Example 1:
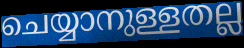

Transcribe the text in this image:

ചെയ്യാനുള്ളതല്ല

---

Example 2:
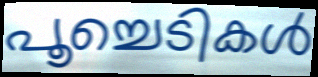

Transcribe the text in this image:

പൂച്ചെടികൾ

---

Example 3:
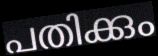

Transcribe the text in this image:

പതിക്കും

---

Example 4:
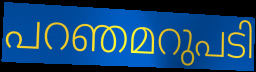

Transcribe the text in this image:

പറഞമറുപടി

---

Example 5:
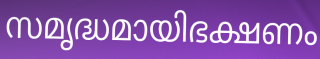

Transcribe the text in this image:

സമൃദ്ധമായിഭക്ഷണം